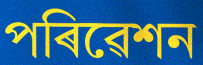
পৰিৱেশন